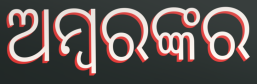
ଅମ୍ବରଙ୍କର